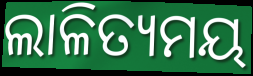
ଲାଳିତ୍ୟମୟ